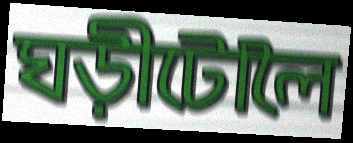
ঘড়ীটোলৈ